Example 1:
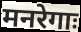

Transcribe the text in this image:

मनरेगाः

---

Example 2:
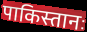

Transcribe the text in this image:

पाकिस्तानः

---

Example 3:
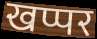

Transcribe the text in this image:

खप्पर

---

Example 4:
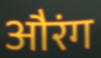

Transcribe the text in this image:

औरंग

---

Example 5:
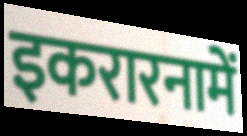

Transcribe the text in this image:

इकरारनामें